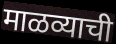
माळव्याची